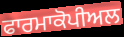
ਫਾਰਮਾਕੋਪੀਅਲ